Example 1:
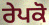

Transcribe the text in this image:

ਰੇਪਕੋ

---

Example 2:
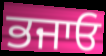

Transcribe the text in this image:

ਭਜਾਓ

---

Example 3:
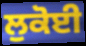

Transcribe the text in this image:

ਲੁਕੋਈ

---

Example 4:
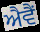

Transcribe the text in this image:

ਐਵੈਂ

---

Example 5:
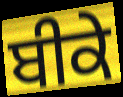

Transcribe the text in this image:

ਬੀਕੇ